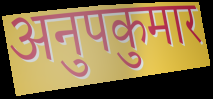
अनुपकुमार